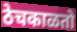
ठेचकाळतो